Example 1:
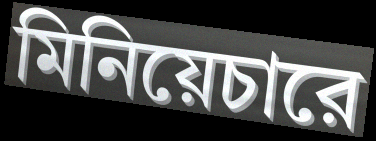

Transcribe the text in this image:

মিনিয়েচারে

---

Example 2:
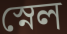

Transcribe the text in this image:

স্নেল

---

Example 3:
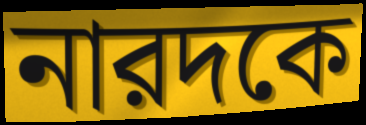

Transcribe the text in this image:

নারদকে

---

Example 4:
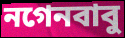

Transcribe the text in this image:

নগেনবাবু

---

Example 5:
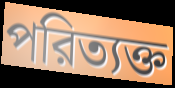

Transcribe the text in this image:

পরিত্যক্ত